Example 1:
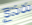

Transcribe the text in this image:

కైసరు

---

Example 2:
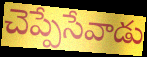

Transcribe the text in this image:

చెప్పేసేవాడు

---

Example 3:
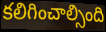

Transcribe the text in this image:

కలిగించాల్సింది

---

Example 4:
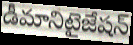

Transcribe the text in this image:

డీమానిటైజేషన్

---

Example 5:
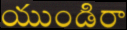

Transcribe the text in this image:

యుండిరా